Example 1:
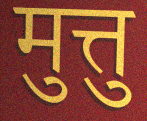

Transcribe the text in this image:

मुत्तु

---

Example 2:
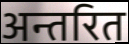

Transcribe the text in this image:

अन्तरित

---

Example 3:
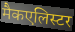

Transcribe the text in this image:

मैकएलिस्टर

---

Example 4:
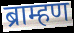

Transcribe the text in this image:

ब्राम्हण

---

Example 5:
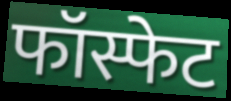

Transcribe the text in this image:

फॉस्फेट